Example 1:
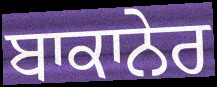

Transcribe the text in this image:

ਬਾਕਾਨੇਰ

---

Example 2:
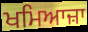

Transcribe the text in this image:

ਖਮਿਆਜ਼ਾ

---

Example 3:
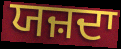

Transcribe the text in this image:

ਯਜ਼ਦਾ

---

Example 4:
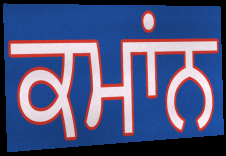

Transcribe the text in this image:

ਕਮਾਂਨ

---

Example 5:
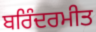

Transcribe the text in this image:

ਬਰਿੰਦਰਮੀਤ